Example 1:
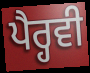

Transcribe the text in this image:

ਪੈਰ੍ਹਵੀ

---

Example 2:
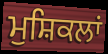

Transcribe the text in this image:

ਮੁਸ਼ਿਕਲਾਂ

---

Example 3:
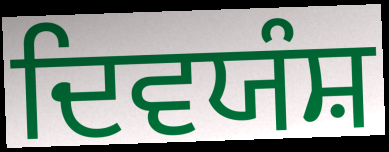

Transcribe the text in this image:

ਦਿਵਯੰਸ਼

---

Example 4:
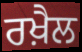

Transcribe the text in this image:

ਰਖ਼ੈਲ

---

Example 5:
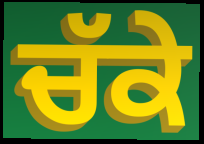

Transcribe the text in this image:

ਚੱਕੇ